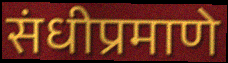
संधीप्रमाणे